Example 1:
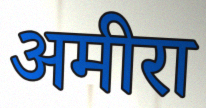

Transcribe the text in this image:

अमीरा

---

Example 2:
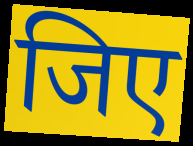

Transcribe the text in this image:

जिए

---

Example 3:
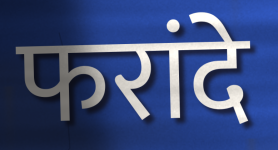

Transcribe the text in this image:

फरांदे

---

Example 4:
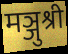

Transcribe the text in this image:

मञ्जुश्री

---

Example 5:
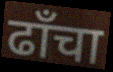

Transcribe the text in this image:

ढाँचा